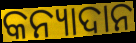
କନ୍ୟାଦାନ